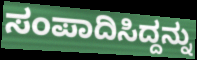
ಸಂಪಾದಿಸಿದ್ದನ್ನು